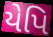
યેપિ